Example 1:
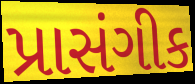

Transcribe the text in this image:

પ્રાસંગીક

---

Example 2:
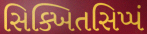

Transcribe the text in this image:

સિક્ખિતસિપ્પં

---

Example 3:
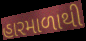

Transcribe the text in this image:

હારમાળાથી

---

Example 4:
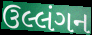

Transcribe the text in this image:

ઉલ્લંગન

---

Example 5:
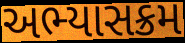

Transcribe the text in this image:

અભ્યાસક્રમ